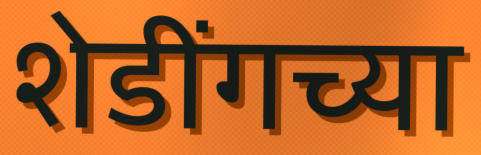
शेडींगच्या